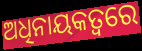
ଅଧିନାୟକତ୍ବରେ